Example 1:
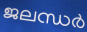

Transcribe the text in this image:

ജലന്ധർ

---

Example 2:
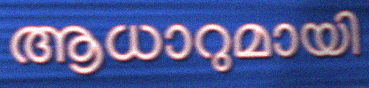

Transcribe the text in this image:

ആധാറുമായി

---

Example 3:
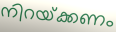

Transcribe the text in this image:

നിറയ്‌ക്കണം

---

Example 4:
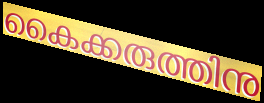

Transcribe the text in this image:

കൈക്കരുത്തിനു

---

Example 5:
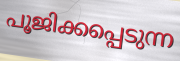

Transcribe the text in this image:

പൂജിക്കപ്പെടുന്ന